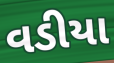
વડીયા